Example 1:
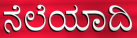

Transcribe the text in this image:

ನೆಲೆಯಾದಿ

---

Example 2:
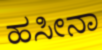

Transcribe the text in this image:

ಹಸೀನಾ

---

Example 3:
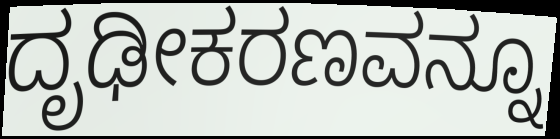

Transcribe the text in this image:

ದೃಢೀಕರಣವನ್ನೂ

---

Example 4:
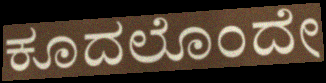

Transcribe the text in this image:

ಕೂದಲೊಂದೇ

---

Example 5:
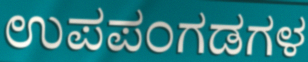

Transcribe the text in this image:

ಉಪಪಂಗಡಗಳ